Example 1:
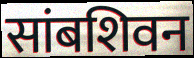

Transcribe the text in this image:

सांबशिवन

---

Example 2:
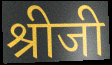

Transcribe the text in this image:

श्रीजी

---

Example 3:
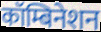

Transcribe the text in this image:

कॉम्बिनेशन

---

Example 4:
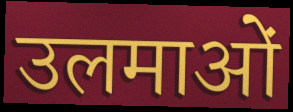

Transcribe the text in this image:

उलमाओं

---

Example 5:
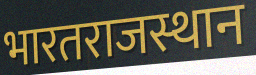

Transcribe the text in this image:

भारतराजस्थान